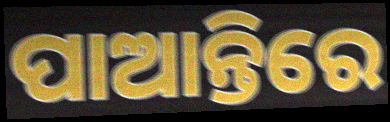
ପାଆନ୍ତିରେ